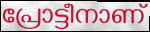
പ്രോട്ടീനാണ്